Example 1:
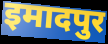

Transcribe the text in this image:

इमादपुर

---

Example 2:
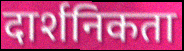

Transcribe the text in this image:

दार्शनिकता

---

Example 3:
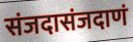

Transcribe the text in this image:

संजदासंजदाणं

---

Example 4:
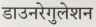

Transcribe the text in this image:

डाउनरेगुलेशन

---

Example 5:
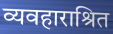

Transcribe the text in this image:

व्यवहाराश्रित